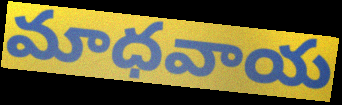
మాధవాయ